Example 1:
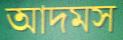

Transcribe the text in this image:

আদমস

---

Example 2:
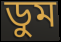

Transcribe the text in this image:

ডুম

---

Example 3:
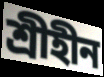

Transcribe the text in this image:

শ্রীহীন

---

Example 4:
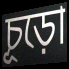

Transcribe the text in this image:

চূড়ো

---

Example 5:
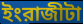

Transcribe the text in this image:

ইংরাজীটা